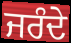
ਜਰੰਦੇ